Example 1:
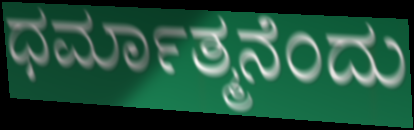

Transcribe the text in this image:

ಧರ್ಮಾತ್ಮನೆಂದು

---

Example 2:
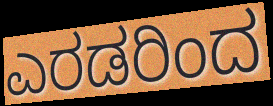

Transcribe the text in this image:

ಎರಡರಿಂದ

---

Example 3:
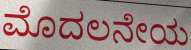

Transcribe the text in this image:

ಮೊದಲನೇಯ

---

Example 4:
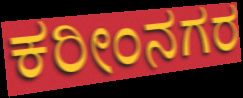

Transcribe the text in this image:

ಕರೀಂನಗರ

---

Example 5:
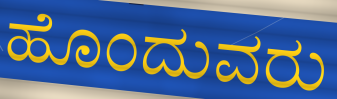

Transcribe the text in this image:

ಹೊಂದುವರು